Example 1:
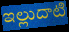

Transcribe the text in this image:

ఇల్లుదాటి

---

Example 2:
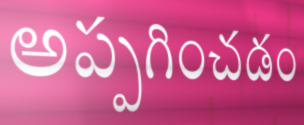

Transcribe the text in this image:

అప్పగించడం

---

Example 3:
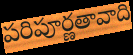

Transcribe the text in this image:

పరిపూర్ణతావాది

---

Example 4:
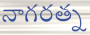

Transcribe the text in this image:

నాగరత్న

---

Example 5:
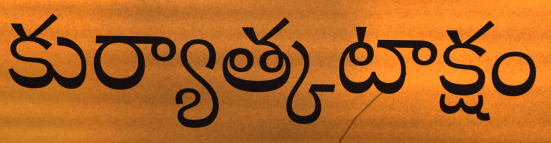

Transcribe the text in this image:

కుర్యాత్కటాక్షం